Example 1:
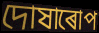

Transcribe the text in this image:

দোষাৰোপ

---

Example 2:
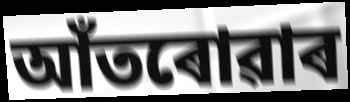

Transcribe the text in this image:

আঁতৰোৱাৰ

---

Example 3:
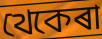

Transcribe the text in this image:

থেকেৰা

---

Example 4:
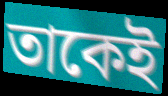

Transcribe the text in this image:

তাকেই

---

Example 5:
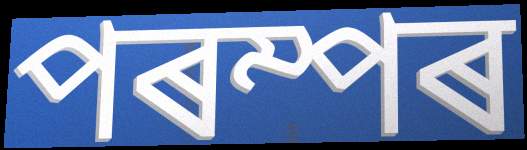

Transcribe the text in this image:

পৰম্পৰ